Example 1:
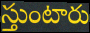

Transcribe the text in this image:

స్తుంటారు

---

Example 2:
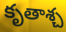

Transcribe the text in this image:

కృతాశ్చ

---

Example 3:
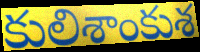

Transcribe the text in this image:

కులిశాంకుశ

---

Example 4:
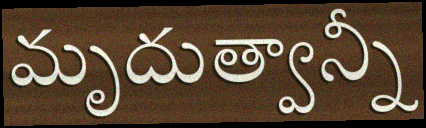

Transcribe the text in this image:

మృదుత్వాన్నీ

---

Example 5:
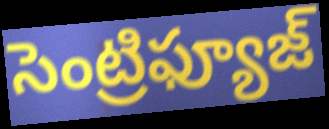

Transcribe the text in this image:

సెంట్రిఫ్యూజ్